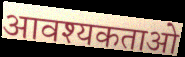
आवश्यकताओ